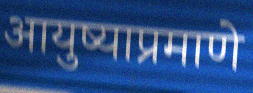
आयुष्याप्रमाणे